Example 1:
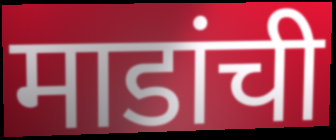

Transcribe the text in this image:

माडांची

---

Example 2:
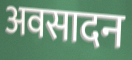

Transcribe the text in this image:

अवसादन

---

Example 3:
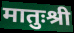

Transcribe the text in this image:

मातुःश्री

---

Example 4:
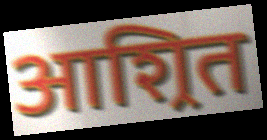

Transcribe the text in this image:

आश्रित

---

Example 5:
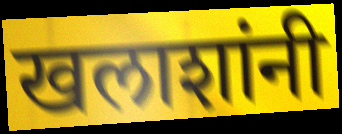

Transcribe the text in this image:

खलाशांनी